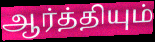
ஆர்த்தியும்